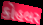
કોહલર